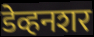
डेव्हनशर